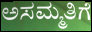
ಅಸಮ್ಮತಿಗೆ